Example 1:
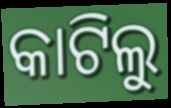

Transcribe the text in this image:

କାଟିଲୁ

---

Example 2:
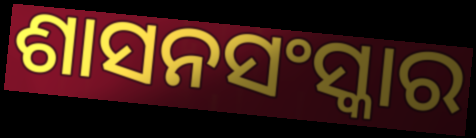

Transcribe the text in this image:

ଶାସନସଂସ୍କାର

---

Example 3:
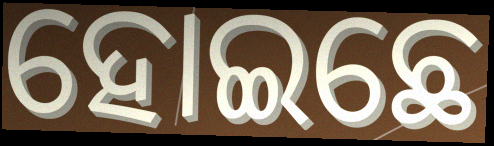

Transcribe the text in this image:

ହୋଇଛେ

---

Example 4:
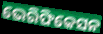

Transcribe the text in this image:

ଭେରିଫିକେସନ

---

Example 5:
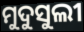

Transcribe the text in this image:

ମୁଦୁସୁଲୀ